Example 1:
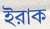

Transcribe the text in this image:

ইরাক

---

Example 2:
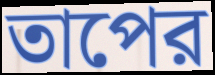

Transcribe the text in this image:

তাপের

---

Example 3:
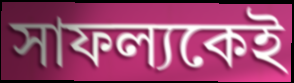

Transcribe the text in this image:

সাফল্যকেই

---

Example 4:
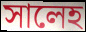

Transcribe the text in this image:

সালেহ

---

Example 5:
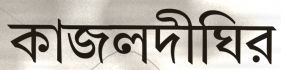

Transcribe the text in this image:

কাজলদীঘির